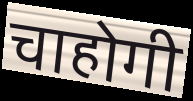
चाहोगी